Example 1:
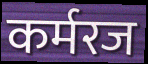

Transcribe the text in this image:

कर्मरज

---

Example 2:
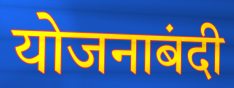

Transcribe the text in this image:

योजनाबंदी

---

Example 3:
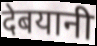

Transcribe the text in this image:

देबयानी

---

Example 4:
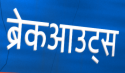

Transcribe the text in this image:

ब्रेकआउट्स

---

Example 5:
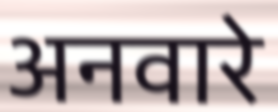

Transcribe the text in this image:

अनवारे